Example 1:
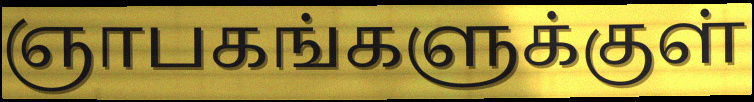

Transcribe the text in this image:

ஞாபகங்களுக்குள்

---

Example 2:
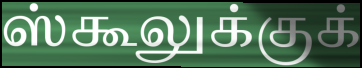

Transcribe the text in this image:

ஸ்கூலுக்குக்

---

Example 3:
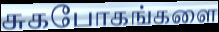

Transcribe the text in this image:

சுகபோகங்களை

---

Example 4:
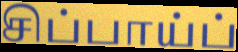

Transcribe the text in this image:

சிப்பாய்ப்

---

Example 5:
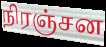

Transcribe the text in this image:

நிரஞ்சன